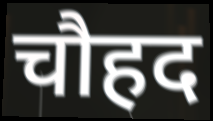
चौहद